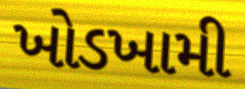
ખોડખામી